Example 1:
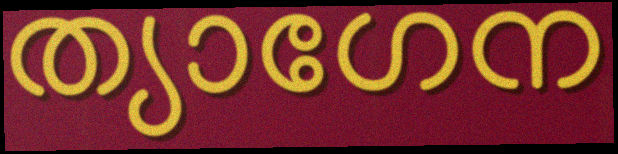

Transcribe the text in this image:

ത്യാഗേന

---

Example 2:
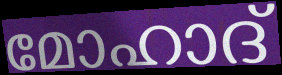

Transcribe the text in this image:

മോഹാദ്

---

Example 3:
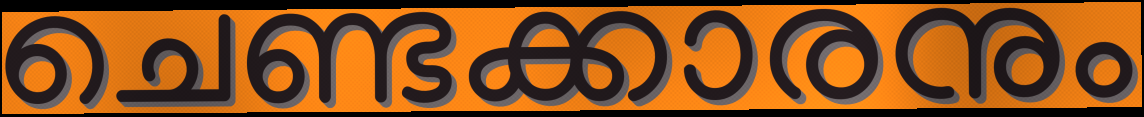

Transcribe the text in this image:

ചെണ്ടക്കാരനും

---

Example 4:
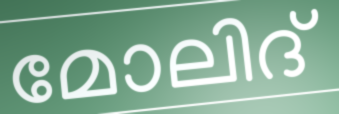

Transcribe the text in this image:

മോലിദ്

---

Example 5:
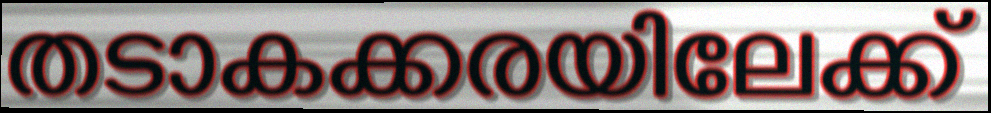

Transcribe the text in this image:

തടാകക്കരയിലേക്ക്